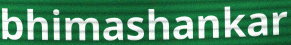
bhimashankar